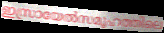
ഇസ്രായേൽസമൂഹത്തിലെ